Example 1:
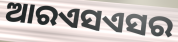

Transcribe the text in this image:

ଆରଏସଏସର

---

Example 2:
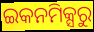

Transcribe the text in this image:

ଇକନମିକ୍ସରୁ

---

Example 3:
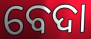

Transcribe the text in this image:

ବେଦା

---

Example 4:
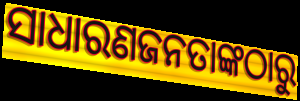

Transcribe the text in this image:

ସାଧାରଣଜନତାଙ୍କଠାରୁ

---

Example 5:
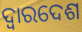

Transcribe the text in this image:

ଦ୍ଵାରଦେଶ